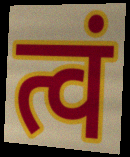
त्वं